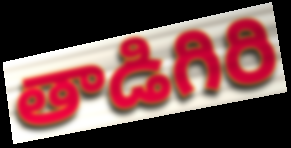
తాడిగిరి